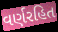
વર્ણરહિત